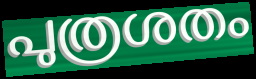
പുത്രശതം